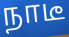
நாடீ